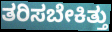
ತರಿಸಬೇಕಿತ್ತು